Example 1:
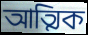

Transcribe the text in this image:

আত্মিক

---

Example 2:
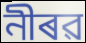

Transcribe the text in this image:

নীৰৱ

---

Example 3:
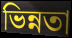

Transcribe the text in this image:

ভিন্নতা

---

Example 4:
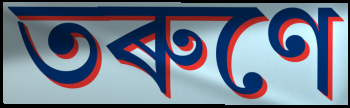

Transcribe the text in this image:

তৰুণে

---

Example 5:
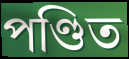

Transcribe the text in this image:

পণ্ডিত